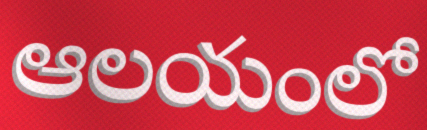
ఆలయంలో